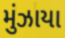
મુંઝાયા